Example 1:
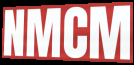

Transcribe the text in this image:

NMCM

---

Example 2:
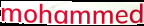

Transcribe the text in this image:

mohammed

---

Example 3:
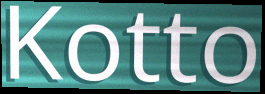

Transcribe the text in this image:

Kotto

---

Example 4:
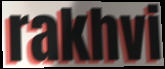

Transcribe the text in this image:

rakhvi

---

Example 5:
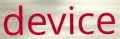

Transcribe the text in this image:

device